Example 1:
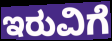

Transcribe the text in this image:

ಇರುವಿಗೆ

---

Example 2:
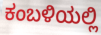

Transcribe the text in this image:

ಕಂಬಳಿಯಲ್ಲಿ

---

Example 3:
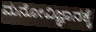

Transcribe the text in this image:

ಮನೋವಿಜ್ಞಾನಕ್ಕೆ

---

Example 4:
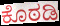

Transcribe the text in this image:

ಕೊಠಡಿ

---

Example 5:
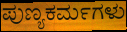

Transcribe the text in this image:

ಪುಣ್ಯಕರ್ಮಗಳು